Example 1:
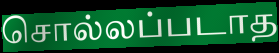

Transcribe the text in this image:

சொல்லப்படாத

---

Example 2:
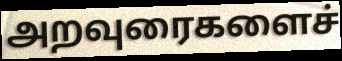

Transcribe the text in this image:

அறவுரைகளைச்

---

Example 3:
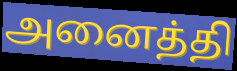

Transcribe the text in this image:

அனைத்தி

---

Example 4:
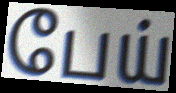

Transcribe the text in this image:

பேய்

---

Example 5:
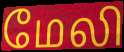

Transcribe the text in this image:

மேலி